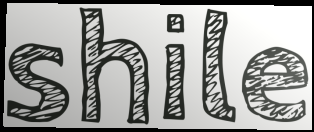
shile